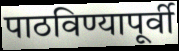
पाठविण्यापूर्वी